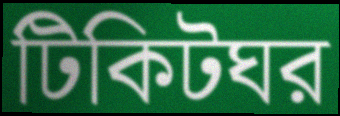
টিকিটঘর